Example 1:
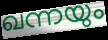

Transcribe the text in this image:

ഖന്നയും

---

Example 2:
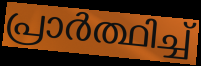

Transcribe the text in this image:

പ്രാർത്ഥിച്ച്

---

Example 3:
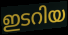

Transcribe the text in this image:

ഇടറിയ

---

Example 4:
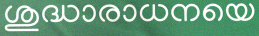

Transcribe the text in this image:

ശുദ്ധാരാധനയെ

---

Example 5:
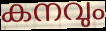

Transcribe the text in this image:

കനവും